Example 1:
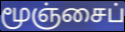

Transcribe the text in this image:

மூஞ்சைப்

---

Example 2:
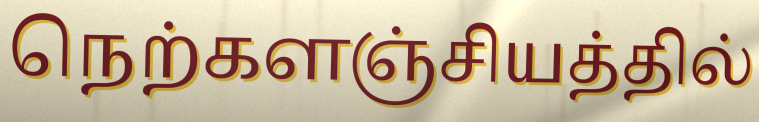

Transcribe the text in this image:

நெற்களஞ்சியத்தில்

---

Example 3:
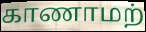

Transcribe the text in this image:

காணாமற்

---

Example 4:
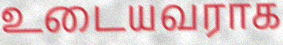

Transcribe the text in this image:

உடையவராக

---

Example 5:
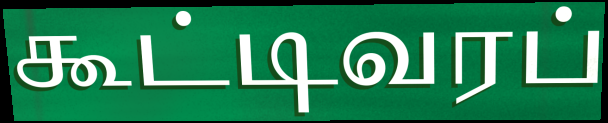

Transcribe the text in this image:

கூட்டிவரப்